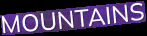
MOUNTAINS